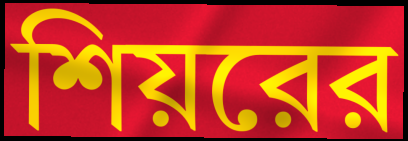
শিয়রের